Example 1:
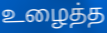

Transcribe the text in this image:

உழைத்த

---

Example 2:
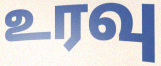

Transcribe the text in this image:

உரவு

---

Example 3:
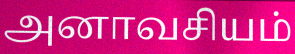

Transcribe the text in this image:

அனாவசியம்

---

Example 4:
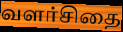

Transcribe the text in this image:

வளர்சிதை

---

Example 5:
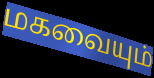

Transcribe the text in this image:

மகவையும்